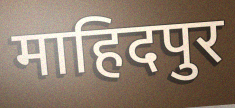
माहिदपुर